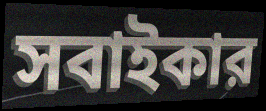
সবাইকার